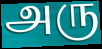
அரு